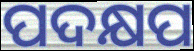
ପଦକ୍ଷପ